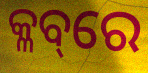
କ୍ଳବ୍‌ରେ